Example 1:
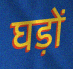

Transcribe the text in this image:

घड़ों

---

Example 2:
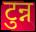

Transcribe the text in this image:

टुन्न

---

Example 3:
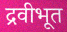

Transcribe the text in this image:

द्रवीभूत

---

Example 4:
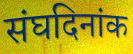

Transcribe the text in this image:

संघदिनांक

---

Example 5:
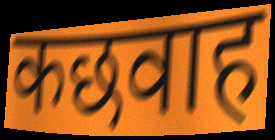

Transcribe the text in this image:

कछवाह